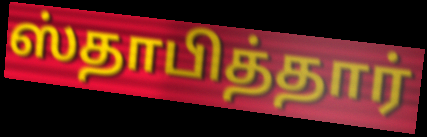
ஸ்தாபித்தார்